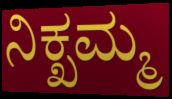
ನಿಕ್ಖಮ್ಮ